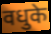
वधुके